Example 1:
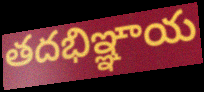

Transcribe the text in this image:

తదభిఞ్ఞాయ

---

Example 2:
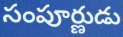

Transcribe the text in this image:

సంపూర్ణుడు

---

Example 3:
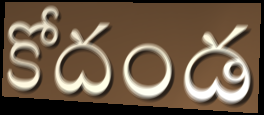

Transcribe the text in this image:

కోదండ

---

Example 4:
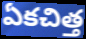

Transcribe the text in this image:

ఏకచిత్త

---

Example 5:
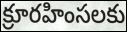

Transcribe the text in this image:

క్రూరహింసలకు